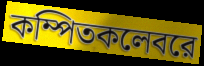
কম্পিতকলেবরে